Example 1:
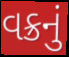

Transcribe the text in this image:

વક્રનું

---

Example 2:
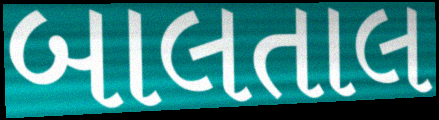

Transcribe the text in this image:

બાલતાલ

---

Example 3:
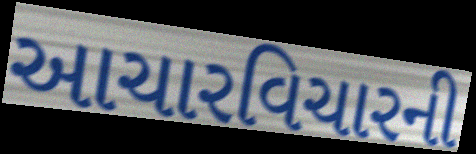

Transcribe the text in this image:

આચારવિચારની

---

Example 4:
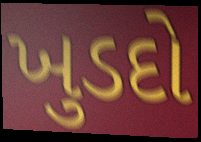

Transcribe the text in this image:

ખુડદો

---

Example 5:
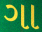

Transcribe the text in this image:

ગા